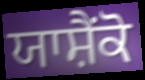
ਯਾਸ਼ੈਂਕੋ